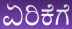
ಏರಿಕೆಗೆ